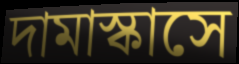
দামাস্কাসে